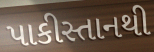
પાકીસ્તાનથી